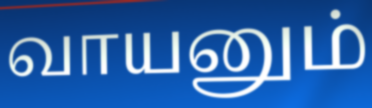
வாயனும்